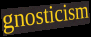
gnosticism